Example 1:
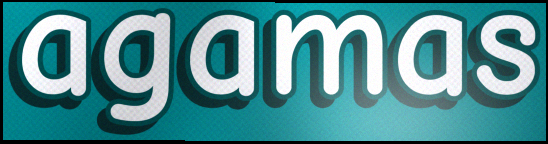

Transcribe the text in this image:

agamas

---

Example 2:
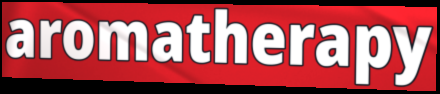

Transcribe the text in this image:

aromatherapy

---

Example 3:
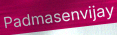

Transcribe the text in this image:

Padmasenvijay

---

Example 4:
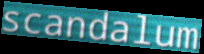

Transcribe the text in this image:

scandalum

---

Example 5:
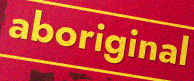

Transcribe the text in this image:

aboriginal